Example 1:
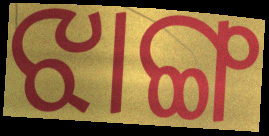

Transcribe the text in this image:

ଝାଙ୍ଗ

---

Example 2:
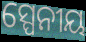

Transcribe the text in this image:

ସ୍ପେନୀୟ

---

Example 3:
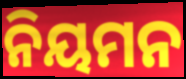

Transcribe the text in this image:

ନିୟମନ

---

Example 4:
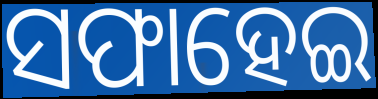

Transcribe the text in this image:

ସଫାହେଇ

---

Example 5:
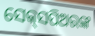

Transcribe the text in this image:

ସେକ୍‌ସପିଅରଙ୍କ